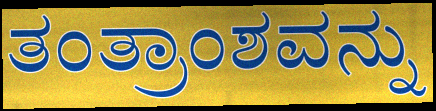
ತಂತ್ರಾಂಶವನ್ನು